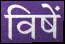
विषें